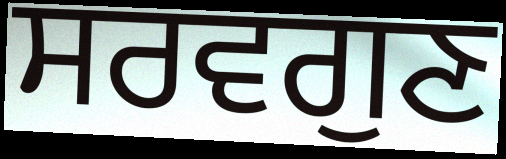
ਸਰਵਗੁਣ